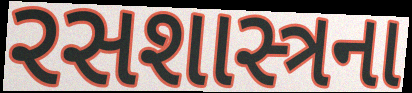
રસશાસ્ત્રના